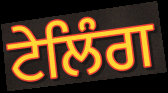
ਟੇਲਿੰਗ